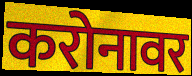
करोनावर